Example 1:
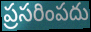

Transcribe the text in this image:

ప్రసరింపదు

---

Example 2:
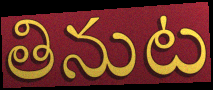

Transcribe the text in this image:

తినుట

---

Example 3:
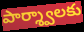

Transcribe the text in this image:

పార్శ్వాలకు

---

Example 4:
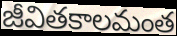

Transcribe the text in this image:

జీవితకాలమంత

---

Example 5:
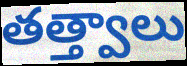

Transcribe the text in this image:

తత్త్వాలు